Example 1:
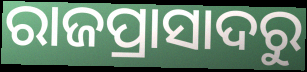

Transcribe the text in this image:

ରାଜପ୍ରାସାଦରୁ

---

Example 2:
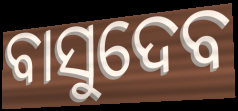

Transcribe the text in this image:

ବାସୁଦେବ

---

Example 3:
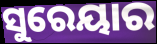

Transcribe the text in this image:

ସୁରେୟାର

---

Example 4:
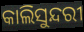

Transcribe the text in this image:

କାଲିସୁନ୍ଦରୀ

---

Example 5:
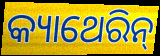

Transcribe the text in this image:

କ୍ୟାଥେରିନ୍